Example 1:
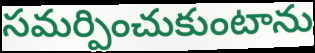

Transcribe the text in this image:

సమర్పించుకుంటాను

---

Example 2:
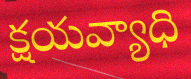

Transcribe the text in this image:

క్షయవ్యాధి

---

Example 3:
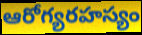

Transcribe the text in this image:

ఆరోగ్యరహస్యం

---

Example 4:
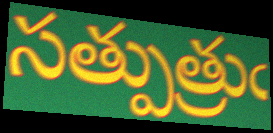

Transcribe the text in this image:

సత్పుత్రుఁ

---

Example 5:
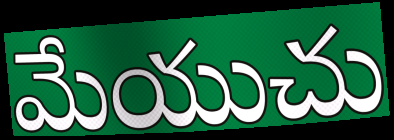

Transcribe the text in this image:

మేయుచు